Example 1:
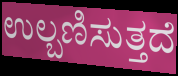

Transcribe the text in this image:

ಉಲ್ಬಣಿಸುತ್ತದೆ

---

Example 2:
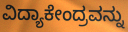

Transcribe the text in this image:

ವಿದ್ಯಾಕೇಂದ್ರವನ್ನು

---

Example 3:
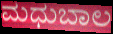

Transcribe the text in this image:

ಮಧುಬಾಲ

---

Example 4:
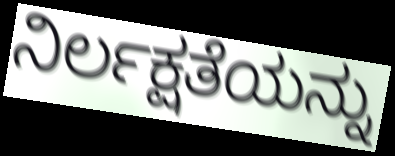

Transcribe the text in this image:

ನಿರ್ಲಕ್ಷತೆಯನ್ನು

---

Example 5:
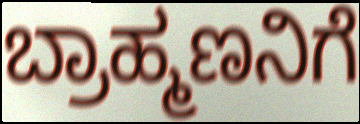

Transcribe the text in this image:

ಬ್ರಾಹ್ಮಣನಿಗೆ